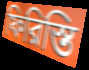
ফিরিস্তি